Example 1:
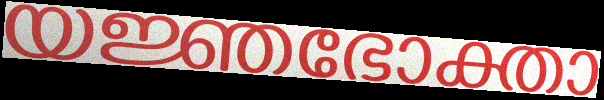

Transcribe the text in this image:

യജ്ഞഭോക്താ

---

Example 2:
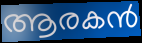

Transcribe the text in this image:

ആരകൻ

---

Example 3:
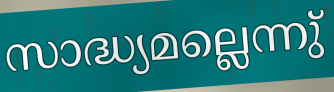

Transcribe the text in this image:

സാദ്ധ്യമല്ലെന്നു്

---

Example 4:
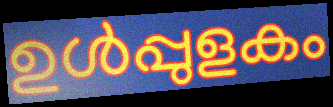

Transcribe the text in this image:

ഉൾപ്പുളകം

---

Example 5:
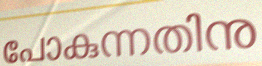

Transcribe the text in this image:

പോകുന്നതിനു